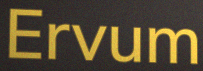
Ervum